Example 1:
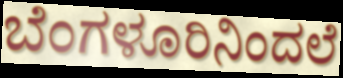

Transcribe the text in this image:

ಬೆಂಗಳೂರಿನಿಂದಲೆ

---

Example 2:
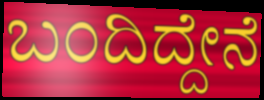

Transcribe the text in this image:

ಬಂದಿದ್ದೇನೆ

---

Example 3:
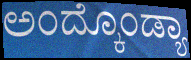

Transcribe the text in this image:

ಅಂದ್ಕೊಂಡ್ಯಾ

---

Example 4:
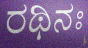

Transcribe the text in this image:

ರಥಿನಃ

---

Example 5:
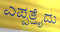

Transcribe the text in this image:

ಎಪ್ಪತ್ತೈದು